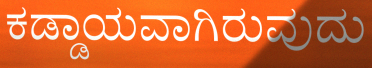
ಕಡ್ಡಾಯವಾಗಿರುವುದು